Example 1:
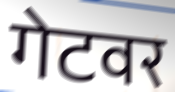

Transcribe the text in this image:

गेटवर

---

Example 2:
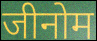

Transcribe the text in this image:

जीनोम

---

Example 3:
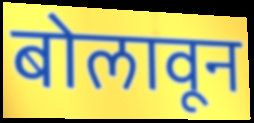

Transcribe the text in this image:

बोलावून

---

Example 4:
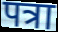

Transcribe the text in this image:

पत्रा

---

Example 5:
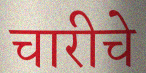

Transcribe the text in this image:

चारीचे